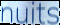
nuits